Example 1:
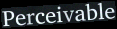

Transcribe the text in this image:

Perceivable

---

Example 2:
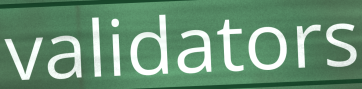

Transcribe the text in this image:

validators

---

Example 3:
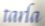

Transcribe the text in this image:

tarla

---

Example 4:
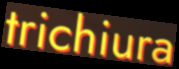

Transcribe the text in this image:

trichiura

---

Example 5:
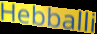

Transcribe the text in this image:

Hebballi